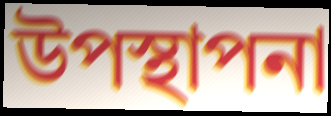
উপস্থাপনা